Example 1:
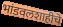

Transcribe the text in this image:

भांडवलशाहीचे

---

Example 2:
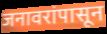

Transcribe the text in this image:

जनावरांपासून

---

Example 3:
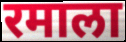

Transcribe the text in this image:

रमाला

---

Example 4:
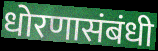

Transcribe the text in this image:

धोरणासंबंधी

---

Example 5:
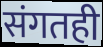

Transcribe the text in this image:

संगतही